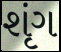
શૃંગ